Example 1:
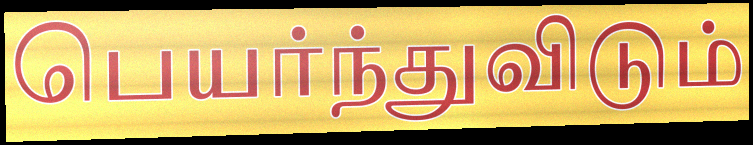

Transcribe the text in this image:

பெயர்ந்துவிடும்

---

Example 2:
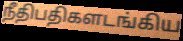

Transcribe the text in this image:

நீதிபதிகளடங்கிய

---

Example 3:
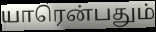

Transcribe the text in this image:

யாரென்பதும்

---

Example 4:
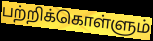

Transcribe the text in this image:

பற்றிக்கொள்ளும்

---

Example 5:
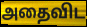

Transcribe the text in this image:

அதைவிட